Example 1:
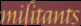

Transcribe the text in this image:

militants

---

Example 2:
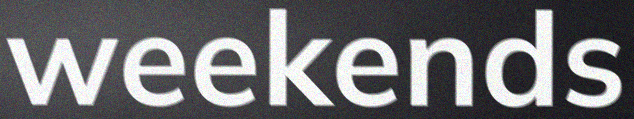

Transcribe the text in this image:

weekends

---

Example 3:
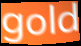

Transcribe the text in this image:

gold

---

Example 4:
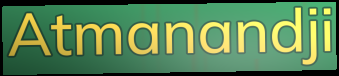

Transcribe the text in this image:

Atmanandji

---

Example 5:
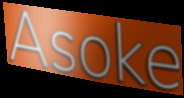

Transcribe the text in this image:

Asoke